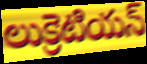
లుక్రెటియస్